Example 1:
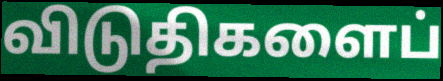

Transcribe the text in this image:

விடுதிகளைப்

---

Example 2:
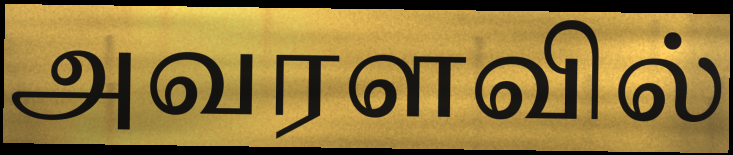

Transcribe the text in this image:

அவரளவில்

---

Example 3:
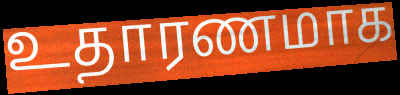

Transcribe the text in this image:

உதாரணமாக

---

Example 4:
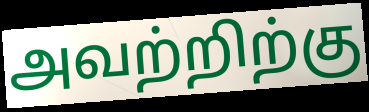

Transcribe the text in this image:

அவற்றிற்கு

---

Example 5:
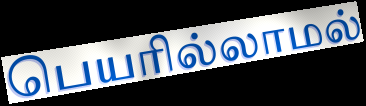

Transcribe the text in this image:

பெயரில்லாமல்